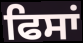
ਫਿਸਾਂ